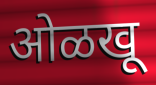
ओळखू